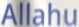
Allahu